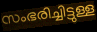
സംഭരിച്ചിട്ടുള്ള